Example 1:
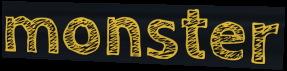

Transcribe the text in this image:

monster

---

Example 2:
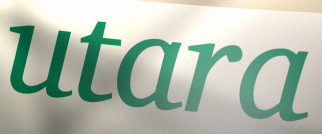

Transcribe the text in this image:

utara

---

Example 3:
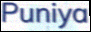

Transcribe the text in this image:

Puniya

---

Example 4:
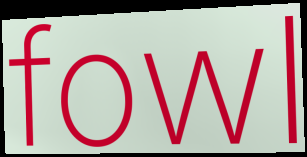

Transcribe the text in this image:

fowl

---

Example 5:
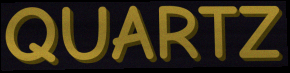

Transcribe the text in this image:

QUARTZ